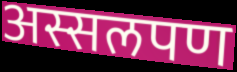
अस्सलपण